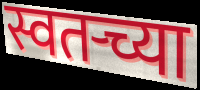
स्वतर्‍च्या